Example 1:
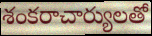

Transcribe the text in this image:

శంకరాచార్యులతో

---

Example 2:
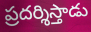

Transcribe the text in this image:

ప్రదర్శిస్తాడు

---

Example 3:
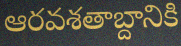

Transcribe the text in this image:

ఆరవశతాబ్దానికి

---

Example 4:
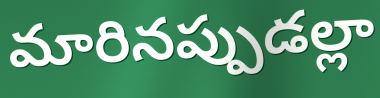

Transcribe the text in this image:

మారినప్పుడల్లా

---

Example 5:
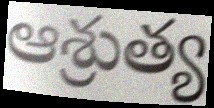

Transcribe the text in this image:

ఆశ్రుత్య